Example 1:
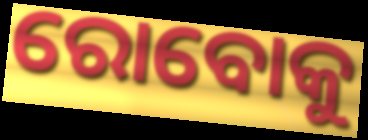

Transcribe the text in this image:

ରୋବୋକୁ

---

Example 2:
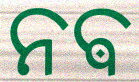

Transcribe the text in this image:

ନଵ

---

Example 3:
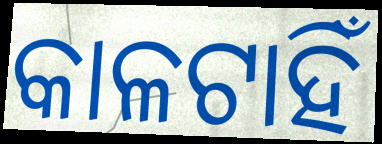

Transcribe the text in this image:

କାଳଟାହିଁ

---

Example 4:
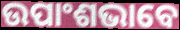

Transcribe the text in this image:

ଉପାଂଶଭାବେ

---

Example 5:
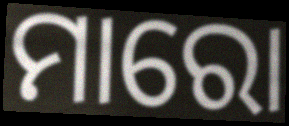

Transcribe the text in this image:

ମାରୋ